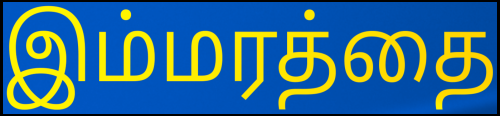
இம்மரத்தை